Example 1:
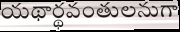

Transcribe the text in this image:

యథార్థవంతులనుగా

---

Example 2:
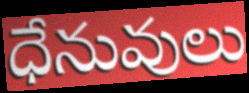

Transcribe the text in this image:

ధేనువులు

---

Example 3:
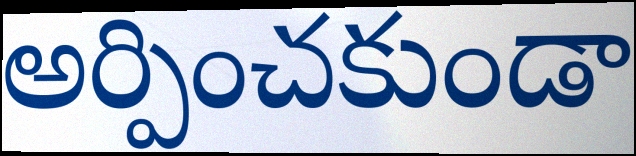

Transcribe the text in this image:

అర్పించకుండా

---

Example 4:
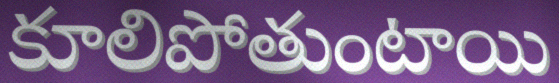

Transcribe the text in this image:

కూలిపోతుంటాయి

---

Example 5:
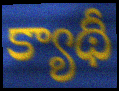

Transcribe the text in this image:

క్యాథీ